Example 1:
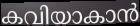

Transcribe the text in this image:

കവിയാകാൻ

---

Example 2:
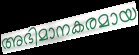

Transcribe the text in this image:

അഭിമാനകരമായ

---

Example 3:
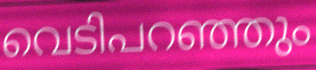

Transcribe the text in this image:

വെടിപറഞ്ഞും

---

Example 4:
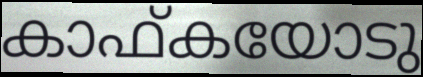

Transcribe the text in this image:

കാഫ്കയോടു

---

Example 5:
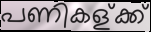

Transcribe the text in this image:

പണികള്ക്ക്